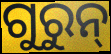
ଗୁରୁନ୍